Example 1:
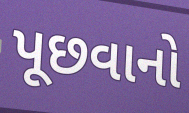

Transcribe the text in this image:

પૂછવાનો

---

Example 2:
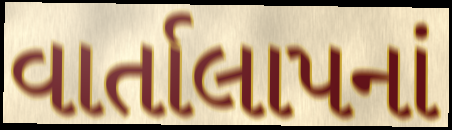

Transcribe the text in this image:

વાર્તાલાપનાં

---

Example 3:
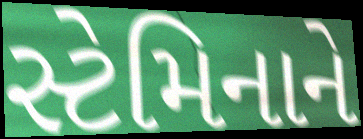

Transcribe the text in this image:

સ્ટેમિનાને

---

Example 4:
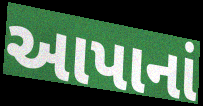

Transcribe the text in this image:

આપાનાં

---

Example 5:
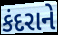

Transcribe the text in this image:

કંદરાને